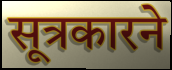
सूत्रकारने